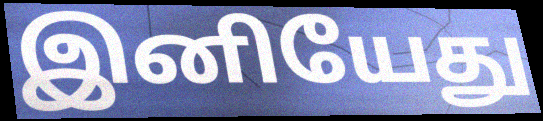
இனியேது